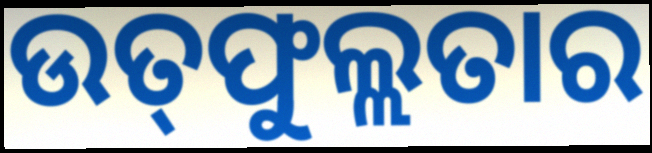
ଉତ୍‌ଫୁଲ୍ଲତାର